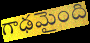
గాఢమైంది